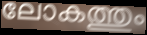
ലോകത്തും